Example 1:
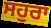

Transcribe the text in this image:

ਸਹੁਰਾ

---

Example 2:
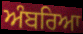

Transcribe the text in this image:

ਅੰਬਰਿਆ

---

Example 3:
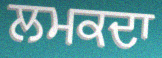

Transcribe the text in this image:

ਲਮਕਦਾ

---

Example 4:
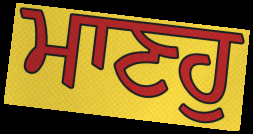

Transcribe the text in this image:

ਮਾਣਹੁ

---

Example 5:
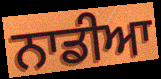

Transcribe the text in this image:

ਨਾਡੀਆ